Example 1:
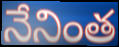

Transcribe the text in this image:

నేనింత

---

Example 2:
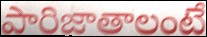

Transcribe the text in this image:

పారిజాతాలంటే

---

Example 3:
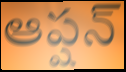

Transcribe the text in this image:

ఆప్షన్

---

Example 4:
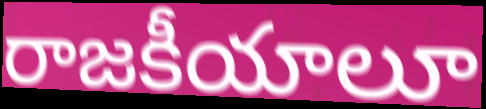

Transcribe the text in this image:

రాజకీయాలూ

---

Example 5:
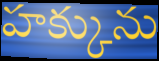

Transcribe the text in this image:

హక్కును